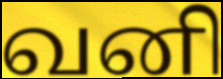
வனி